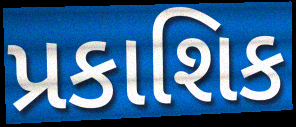
પ્રકાશિક